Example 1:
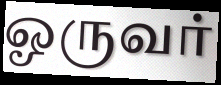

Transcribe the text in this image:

ஓருவர்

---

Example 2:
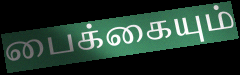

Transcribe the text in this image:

பைக்கையும்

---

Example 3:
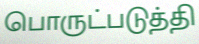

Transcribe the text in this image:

பொருட்படுத்தி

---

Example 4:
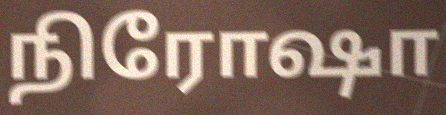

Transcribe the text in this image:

நிரோஷா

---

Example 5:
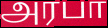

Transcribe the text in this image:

அரபா